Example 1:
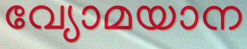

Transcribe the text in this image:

വ്യോമയാന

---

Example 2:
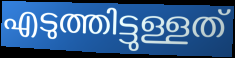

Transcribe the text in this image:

എടുത്തിട്ടുള്ളത്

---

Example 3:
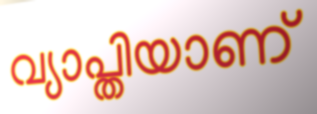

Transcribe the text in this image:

വ്യാപ്തിയാണ്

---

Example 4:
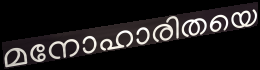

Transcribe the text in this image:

മനോഹാരിതയെ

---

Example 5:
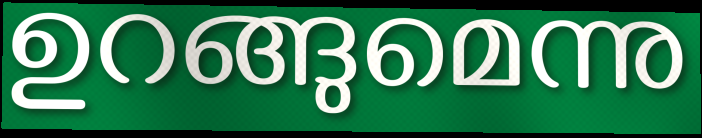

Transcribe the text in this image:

ഉറങ്ങുമെന്നു